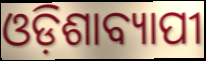
ଓଡ଼ିଶାବ୍ୟାପୀ